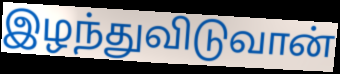
இழந்துவிடுவான்